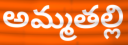
అమ్మతల్లి